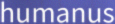
humanus